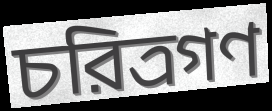
চরিত্রগণ